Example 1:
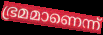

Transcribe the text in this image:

ഭ്രമമാണെന്ന്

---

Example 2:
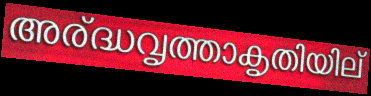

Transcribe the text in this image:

അര്ദ്ധവൃത്താകൃതിയില്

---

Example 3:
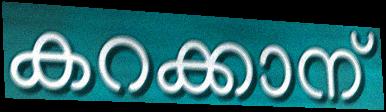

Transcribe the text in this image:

കറക്കാന്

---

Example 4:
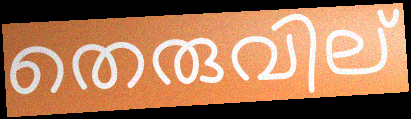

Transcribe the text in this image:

തെരുവില്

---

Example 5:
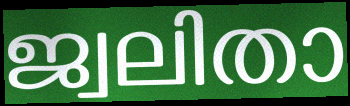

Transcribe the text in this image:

ജ്വലിതാ